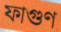
ফাগুণ